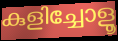
കുളിച്ചോളൂ